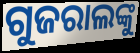
ଗୁଜରାଲଙ୍କୁ